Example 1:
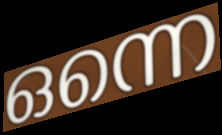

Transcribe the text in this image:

ഒന്നെ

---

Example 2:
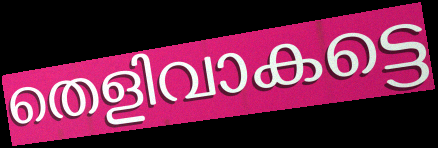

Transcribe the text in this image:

തെളിവാകട്ടെ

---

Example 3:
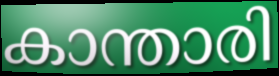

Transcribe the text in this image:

കാന്താരി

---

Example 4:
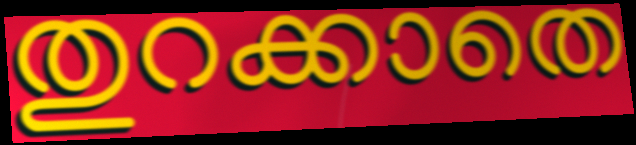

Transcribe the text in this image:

തുറക്കാതെ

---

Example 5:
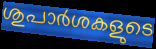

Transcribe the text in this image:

ശുപാർശകളുടെ